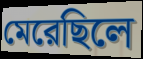
মেরেছিলে